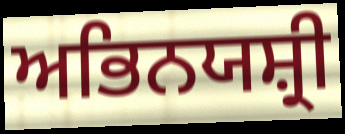
ਅਭਿਨਯਸ਼੍ਰੀ